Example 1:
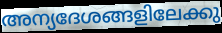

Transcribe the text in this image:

അന്യദേശങ്ങളിലേക്കു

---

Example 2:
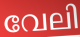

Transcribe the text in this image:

വേലി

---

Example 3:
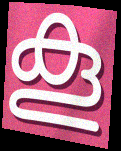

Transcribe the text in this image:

കൂ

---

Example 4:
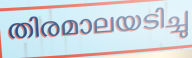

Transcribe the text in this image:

തിരമാലയടിച്ചു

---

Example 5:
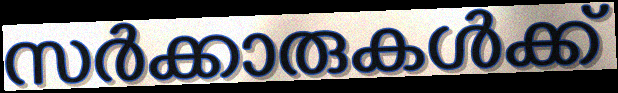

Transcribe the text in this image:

സർക്കാരുകൾക്ക്